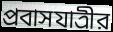
প্রবাসযাত্রীর